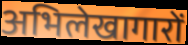
अभिलेखागारों